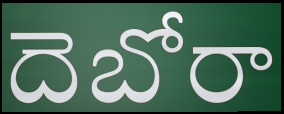
దెబోరా